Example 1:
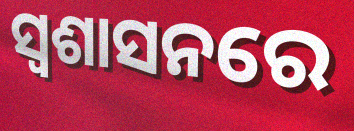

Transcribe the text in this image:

ସ୍ଵଶାସନରେ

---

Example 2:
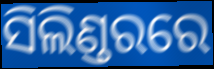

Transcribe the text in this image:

ସିଲିଣ୍ଡରରେ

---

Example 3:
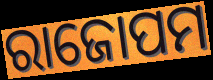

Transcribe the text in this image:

ରାଜୋପମ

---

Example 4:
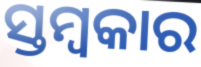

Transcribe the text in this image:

ସ୍ତମ୍ବକାର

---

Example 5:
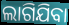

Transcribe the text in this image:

ଲାଗିଯିବା